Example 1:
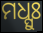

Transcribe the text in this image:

ମଧ୍ସୁଃ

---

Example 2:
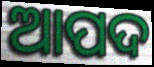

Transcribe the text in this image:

ଆପଦ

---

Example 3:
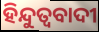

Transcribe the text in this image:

ହିନ୍ଦୁତ୍ବବାଦୀ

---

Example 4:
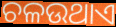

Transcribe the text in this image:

ଚଳଉଥାଏ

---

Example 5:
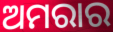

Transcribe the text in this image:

ଅମରାର